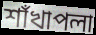
শাঁখাপলা